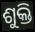
ଶୁକ୍ତି